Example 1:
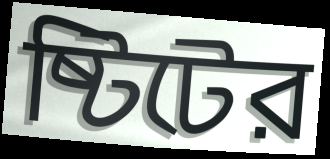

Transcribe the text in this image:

ষ্টিটের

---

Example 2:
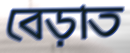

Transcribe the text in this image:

বেড়াত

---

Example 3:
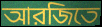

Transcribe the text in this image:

আরজিতে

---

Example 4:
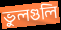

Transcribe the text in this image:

ভুলগুলি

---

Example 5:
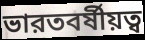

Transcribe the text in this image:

ভারতবর্ষীয়ত্ব